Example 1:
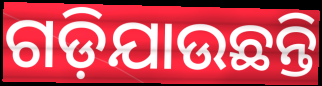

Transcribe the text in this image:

ଗଡ଼ିଯାଉଛନ୍ତି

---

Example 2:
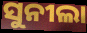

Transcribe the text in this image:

ସୁନୀଲା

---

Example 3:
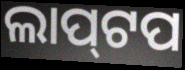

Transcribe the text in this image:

ଲାପ୍‌ଟପ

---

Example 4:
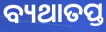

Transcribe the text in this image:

ବ୍ୟଥାତପ୍ତ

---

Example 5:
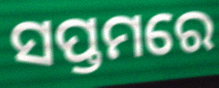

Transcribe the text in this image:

ସପ୍ତମରେ